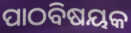
ପାଠବିଷୟକ